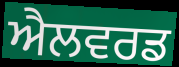
ਐਲਵਰਡ